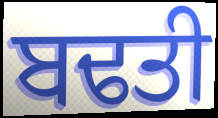
ਬਢਤੀ